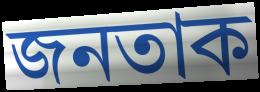
জনতাক